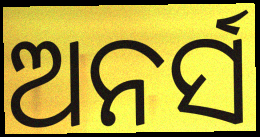
ଅନର୍ସ